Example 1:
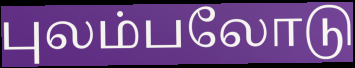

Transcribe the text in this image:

புலம்பலோடு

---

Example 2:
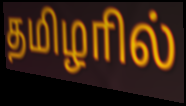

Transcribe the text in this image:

தமிழரில்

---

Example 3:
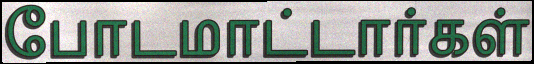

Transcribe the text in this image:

போடமாட்டார்கள்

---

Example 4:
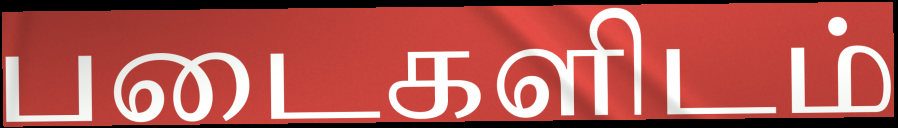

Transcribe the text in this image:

படைகளிடம்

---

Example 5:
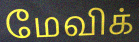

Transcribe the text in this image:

மேவிக்